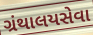
ગ્રંથાલયસેવા